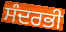
ਸੰਦਰਭੀ